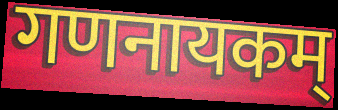
गणनायकम्